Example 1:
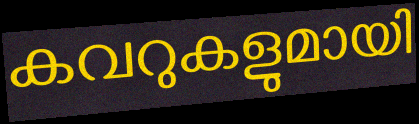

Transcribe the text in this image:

കവറുകളുമായി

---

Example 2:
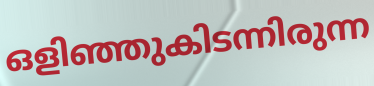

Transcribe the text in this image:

ഒളിഞ്ഞുകിടന്നിരുന്ന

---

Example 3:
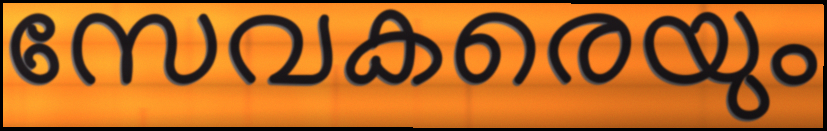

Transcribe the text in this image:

സേവകരെയും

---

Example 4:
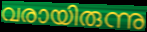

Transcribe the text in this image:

വരായിരുന്നു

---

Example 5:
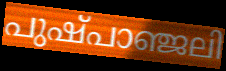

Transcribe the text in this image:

പുഷ്പാഞ്ജലി